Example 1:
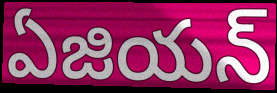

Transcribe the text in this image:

ఏజియన్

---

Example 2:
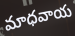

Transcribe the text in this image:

మాధవాయ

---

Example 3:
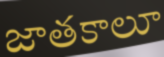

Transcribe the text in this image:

జాతకాలూ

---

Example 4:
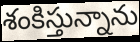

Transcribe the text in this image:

శంకిస్తున్నాను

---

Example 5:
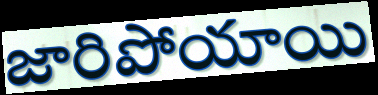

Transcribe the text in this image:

జారిపోయాయి